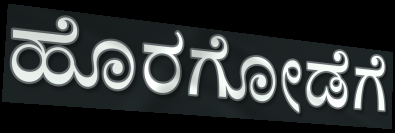
ಹೊರಗೋಡೆಗೆ